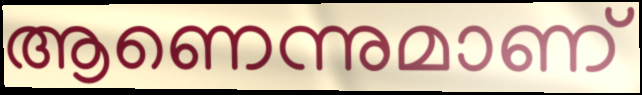
ആണെന്നുമാണ്